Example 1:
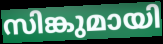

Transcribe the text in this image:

സിങ്കുമായി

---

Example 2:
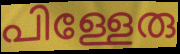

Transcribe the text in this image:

പിള്ളേരു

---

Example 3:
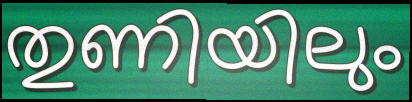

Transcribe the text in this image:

തുണിയിലും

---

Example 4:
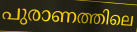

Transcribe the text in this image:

പുരാണത്തിലെ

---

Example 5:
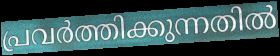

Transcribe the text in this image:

പ്രവർത്തിക്കുന്നതിൽ